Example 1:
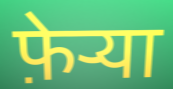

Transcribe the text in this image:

फ़ेर्‍या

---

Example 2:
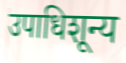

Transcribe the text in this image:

उपाधिशून्य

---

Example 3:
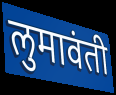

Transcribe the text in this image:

लुमावंती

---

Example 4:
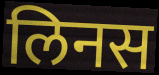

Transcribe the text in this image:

लिनस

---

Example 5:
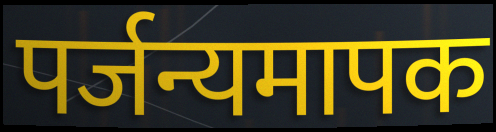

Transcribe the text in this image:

पर्जन्यमापक